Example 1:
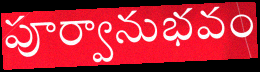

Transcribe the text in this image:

పూర్వానుభవం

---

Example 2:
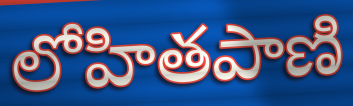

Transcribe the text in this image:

లోహితపాణి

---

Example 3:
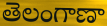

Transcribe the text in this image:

తెలంగాణా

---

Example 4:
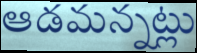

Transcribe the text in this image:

ఆడమన్నట్లు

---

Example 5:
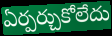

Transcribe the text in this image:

ఏర్పర్చుకోలేదు